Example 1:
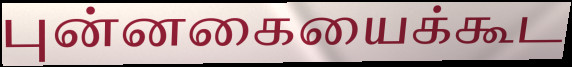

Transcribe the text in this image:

புன்னகையைக்கூட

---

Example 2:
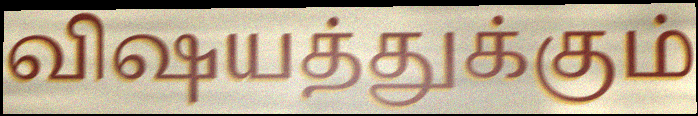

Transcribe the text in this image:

விஷயத்துக்கும்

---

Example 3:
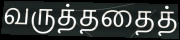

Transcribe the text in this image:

வருத்ததைத்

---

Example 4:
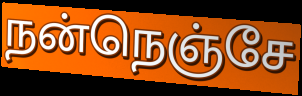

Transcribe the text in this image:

நன்நெஞ்சே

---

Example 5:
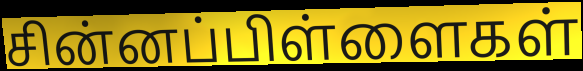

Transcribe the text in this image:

சின்னப்பிள்ளைகள்